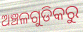
ଅଞ୍ଚଳଗୁଡିକରୁ